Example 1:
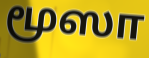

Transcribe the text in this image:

மூஸா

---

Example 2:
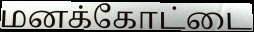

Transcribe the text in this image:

மனக்கோட்டை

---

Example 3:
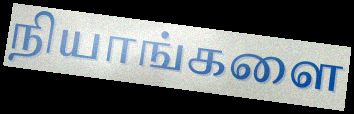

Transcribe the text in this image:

நியாங்களை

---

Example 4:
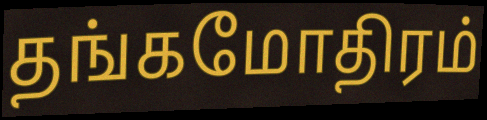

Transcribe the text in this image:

தங்கமோதிரம்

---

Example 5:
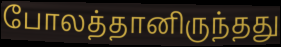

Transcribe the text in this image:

போலத்தானிருந்தது